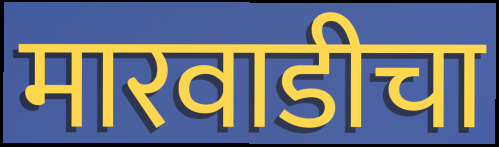
मारवाडीचा